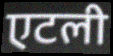
एटली